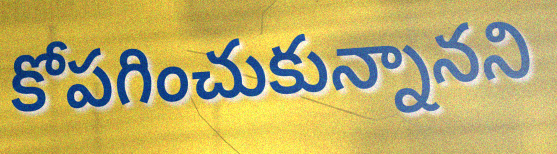
కోపగించుకున్నానని